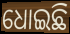
ଧୋଇଛି